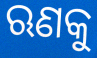
ଋଣକୁ